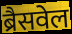
ब्रैसवेल